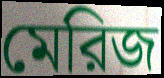
মেরিজ